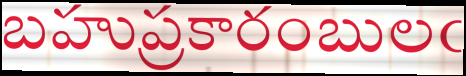
బహుప్రకారంబులఁ